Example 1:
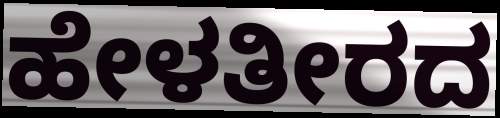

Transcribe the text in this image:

ಹೇಳತೀರದ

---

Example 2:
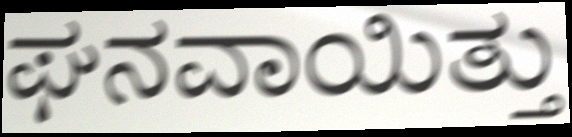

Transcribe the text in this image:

ಘನವಾಯಿತ್ತು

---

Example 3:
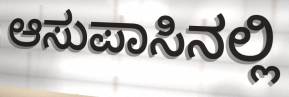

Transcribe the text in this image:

ಆಸುಪಾಸಿನಲ್ಲಿ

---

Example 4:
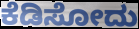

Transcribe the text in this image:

ಕೆಡಿಸೋದು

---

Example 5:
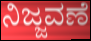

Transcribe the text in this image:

ನಿಜ್ಜವಣೆ